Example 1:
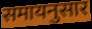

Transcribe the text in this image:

समायनुसार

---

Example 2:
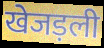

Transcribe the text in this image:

खेजड़ली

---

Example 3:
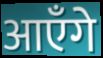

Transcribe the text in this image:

आएँगे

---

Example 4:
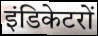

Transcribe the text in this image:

इंडिकेटरों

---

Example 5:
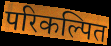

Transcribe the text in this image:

परिकल्पित